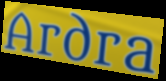
Ardra